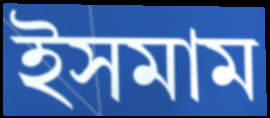
ইসমাম